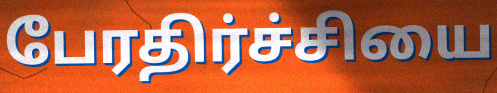
பேரதிர்ச்சியை